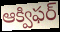
ఆక్విఫర్